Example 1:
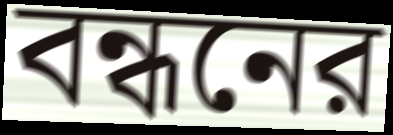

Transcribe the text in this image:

বন্ধনের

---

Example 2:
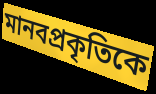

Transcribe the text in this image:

মানবপ্রকৃতিকে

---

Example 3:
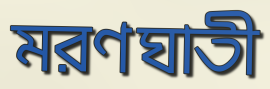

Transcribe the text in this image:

মরণঘাতী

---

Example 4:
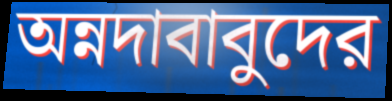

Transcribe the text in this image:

অন্নদাবাবুদের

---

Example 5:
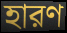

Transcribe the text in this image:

হারণ